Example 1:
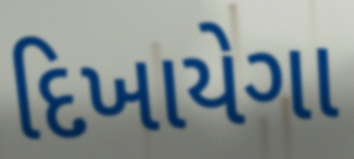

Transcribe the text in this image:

દિખાયેગા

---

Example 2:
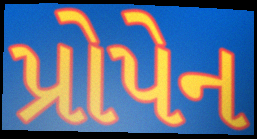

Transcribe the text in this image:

પ્રોપેન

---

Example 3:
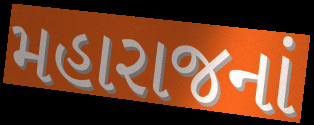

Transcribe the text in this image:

મહારાજનાં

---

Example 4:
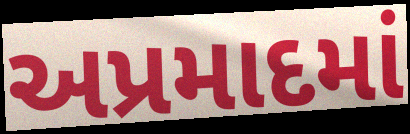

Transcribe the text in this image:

અપ્રમાદમાં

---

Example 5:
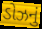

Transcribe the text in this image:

ડોઝનું